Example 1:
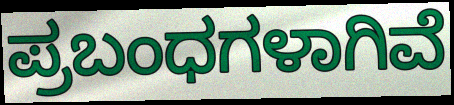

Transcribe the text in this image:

ಪ್ರಬಂಧಗಳಾಗಿವೆ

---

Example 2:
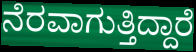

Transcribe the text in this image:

ನೆರವಾಗುತ್ತಿದ್ದಾರೆ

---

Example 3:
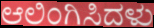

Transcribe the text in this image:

ಆಲಿಂಗಿಸಿದಳು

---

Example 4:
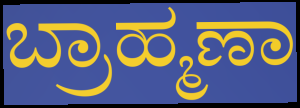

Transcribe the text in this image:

ಬ್ರಾಹ್ಮಣಾ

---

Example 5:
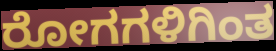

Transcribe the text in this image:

ರೋಗಗಳಿಗಿಂತ